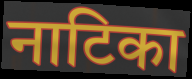
नाटिका